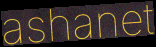
ashanet